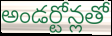
అండర్టోన్లతో